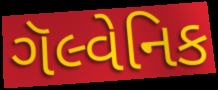
ગૅલ્વેનિક